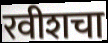
रवीशचा